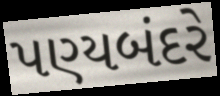
પણ્યબંદરે